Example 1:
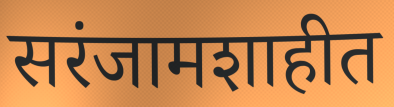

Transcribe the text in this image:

सरंजामशाहीत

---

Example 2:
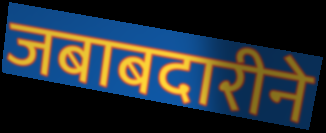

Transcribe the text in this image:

जबाबदारीने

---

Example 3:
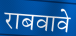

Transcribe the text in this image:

राबवावे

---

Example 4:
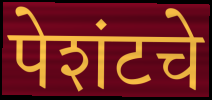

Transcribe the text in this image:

पेशंटचे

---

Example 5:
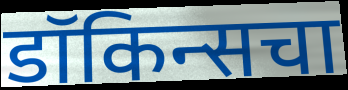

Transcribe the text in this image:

डॉकिन्सचा